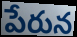
పేరున